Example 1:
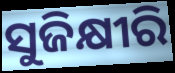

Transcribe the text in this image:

ସୁଜିକ୍ଷୀରି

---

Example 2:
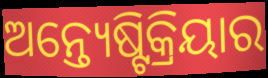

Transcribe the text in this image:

ଅନ୍ତ୍ୟେଷ୍ଟିକ୍ରିୟାର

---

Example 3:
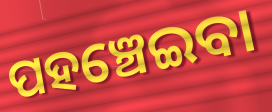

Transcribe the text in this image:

ପହଞ୍ଚେଇବା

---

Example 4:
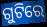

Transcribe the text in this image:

ଗୁଟିରେ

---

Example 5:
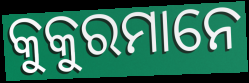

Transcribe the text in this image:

କୁକୁରମାନେ